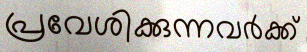
പ്രവേശിക്കുന്നവർക്ക്